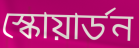
স্কোয়ার্ডন